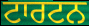
ਟਾਰਟਨ